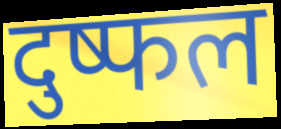
दुष्फल